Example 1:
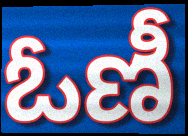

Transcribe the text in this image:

ఓణీ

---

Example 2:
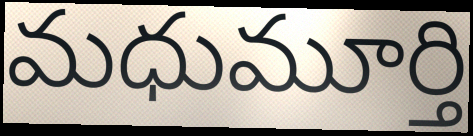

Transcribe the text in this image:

మధుమూర్తి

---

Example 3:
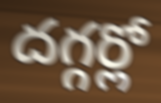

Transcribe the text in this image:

దగ్గర్లో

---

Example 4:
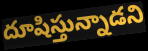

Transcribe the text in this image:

దూషిస్తున్నాడని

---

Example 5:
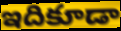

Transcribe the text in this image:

ఇదికూడా